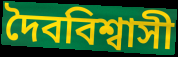
দৈববিশ্বাসী